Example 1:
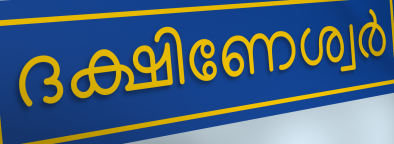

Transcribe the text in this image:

ദക്ഷിണേശ്വർ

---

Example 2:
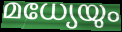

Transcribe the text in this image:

മധ്യേയും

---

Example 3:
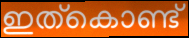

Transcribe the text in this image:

ഇത്കൊണ്ട്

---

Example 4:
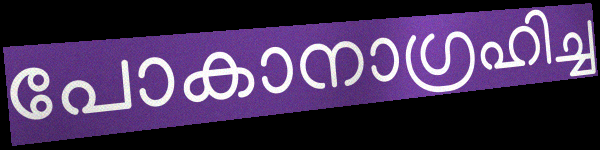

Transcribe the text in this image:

പോകാനാഗ്രഹിച്ച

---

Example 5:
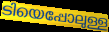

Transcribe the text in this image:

ടിയെപ്പോലുള്ള